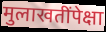
मुलाखतींपेक्षा